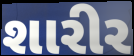
શારીર